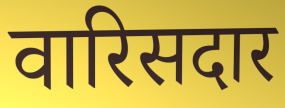
वारिसदार